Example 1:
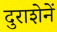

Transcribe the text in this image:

दुराशेनें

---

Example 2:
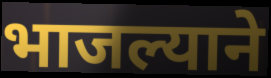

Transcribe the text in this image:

भाजल्याने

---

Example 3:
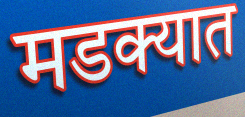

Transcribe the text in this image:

मडक्यात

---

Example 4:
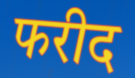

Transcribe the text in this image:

फरीद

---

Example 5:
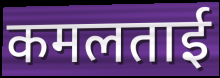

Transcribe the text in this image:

कमलताई